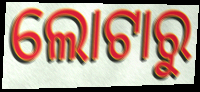
ଲୋଟାରୁ